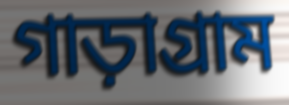
গাড়াগ্রাম